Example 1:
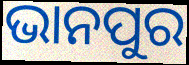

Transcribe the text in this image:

ଭାନପୁର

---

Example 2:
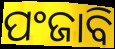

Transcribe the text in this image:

ପଂଜାବି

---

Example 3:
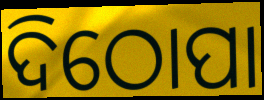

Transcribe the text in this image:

ଦିଠୋପା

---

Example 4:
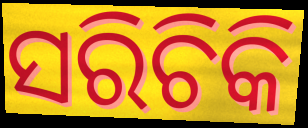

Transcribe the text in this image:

ସରିଚିକି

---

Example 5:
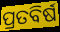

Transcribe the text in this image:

ପ୍ରତବିର୍ଷ